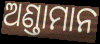
ଅଣ୍ଡାମାନ